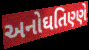
અનોઘતિણ્ણે